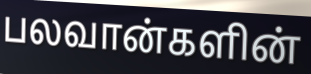
பலவான்களின்